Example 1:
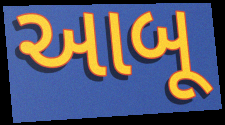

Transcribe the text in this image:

આબૂ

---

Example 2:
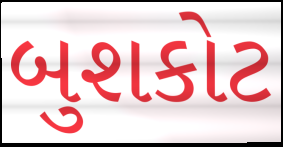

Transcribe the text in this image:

બુશકોટ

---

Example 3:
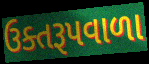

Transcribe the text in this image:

ઉક્તરૂપવાળા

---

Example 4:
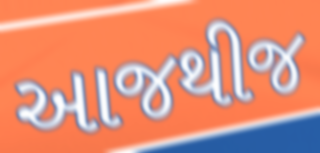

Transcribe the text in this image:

આજથીજ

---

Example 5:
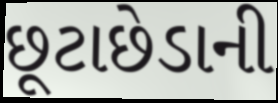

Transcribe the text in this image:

છૂટાછેડાની